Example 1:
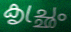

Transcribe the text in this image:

കൃച്ഛ്രം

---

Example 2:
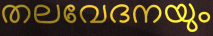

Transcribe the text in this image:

തലവേദനയും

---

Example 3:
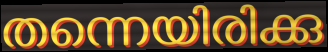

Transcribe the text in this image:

തന്നെയിരിക്കു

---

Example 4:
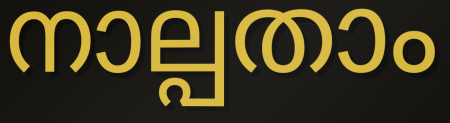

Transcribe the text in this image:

നാല്പതാം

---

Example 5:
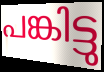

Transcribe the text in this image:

പങ്കിട്ടു